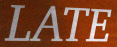
LATE